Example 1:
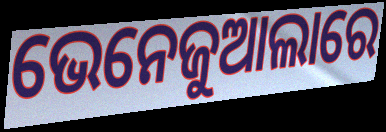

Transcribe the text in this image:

ଭେନେଜୁଆଲାରେ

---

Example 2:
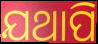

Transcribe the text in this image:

ଯଥାପି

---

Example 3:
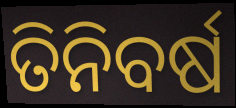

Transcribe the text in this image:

ତିନିବର୍ଷ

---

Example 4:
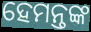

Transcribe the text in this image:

ହେମନ୍ତଙ୍କ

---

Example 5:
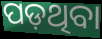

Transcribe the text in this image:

ପଡ଼ଥିବା